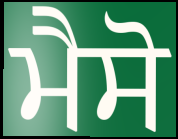
ਮੈਸੋ